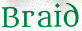
Braid